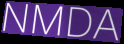
NMDA